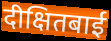
दीक्षितबाई